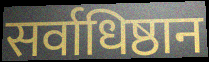
सर्वाधिष्ठान